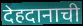
देहदानाची